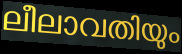
ലീലാവതിയും